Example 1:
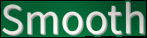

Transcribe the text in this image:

Smooth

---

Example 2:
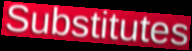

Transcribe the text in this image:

Substitutes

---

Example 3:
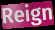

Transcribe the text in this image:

Reign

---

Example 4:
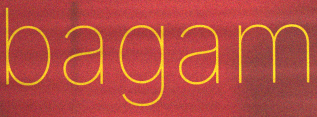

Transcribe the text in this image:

bagam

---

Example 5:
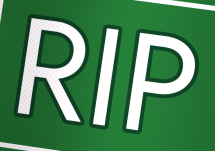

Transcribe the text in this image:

RIP